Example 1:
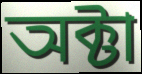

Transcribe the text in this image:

অক্টা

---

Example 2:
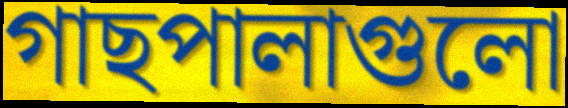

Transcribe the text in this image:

গাছপালাগুলো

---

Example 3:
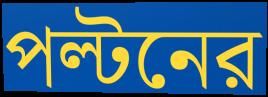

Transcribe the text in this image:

পল্টনের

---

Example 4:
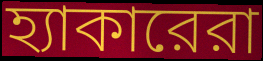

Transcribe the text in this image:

হ্যাকারেরা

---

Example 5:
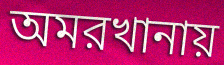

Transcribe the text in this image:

অমরখানায়